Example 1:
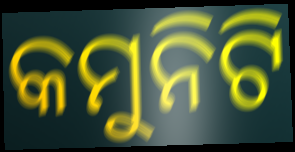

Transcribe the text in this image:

କମୁନିଟି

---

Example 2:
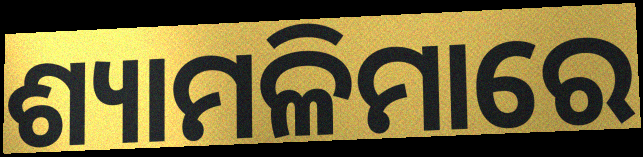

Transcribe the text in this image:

ଶ୍ୟାମଳିମାରେ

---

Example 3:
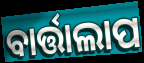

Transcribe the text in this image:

ବାର୍ତ୍ତାଲାପ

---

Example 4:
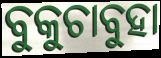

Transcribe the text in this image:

ବୁକୁଚାବୁହା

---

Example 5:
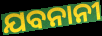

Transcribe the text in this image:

ଯବନାନୀ